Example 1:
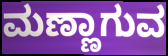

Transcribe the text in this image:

ಮಣ್ಣಾಗುವ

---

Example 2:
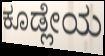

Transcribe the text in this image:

ಕೂಡ್ಲೇಯ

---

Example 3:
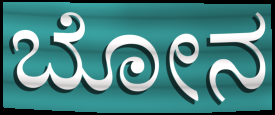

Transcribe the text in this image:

ಬೋನ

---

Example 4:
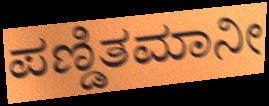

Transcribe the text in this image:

ಪಣ್ಡಿತಮಾನೀ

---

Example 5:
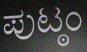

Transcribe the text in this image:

ಪುಟ್ಠಂ